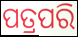
ପତ୍ରପରି